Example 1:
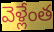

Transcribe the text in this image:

వెళ్లేంత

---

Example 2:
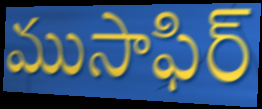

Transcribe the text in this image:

ముసాఫిర్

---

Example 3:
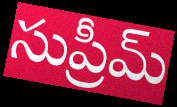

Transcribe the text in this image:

సుప్రీమ్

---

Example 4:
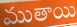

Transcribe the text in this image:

ముతాయి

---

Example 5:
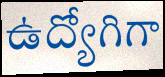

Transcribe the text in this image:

ఉద్యోగిగా